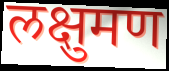
लक्षुमण